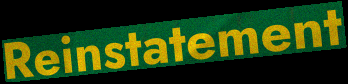
Reinstatement